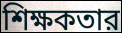
শিক্ষকতার